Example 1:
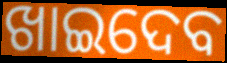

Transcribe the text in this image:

ଖାଇଦେବ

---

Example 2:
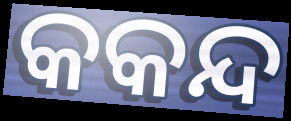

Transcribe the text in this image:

କକନ୍ଦ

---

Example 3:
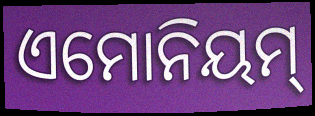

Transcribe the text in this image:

ଏମୋନିୟମ୍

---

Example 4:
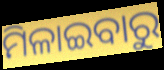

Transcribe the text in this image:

ମିଳାଇବାରୁ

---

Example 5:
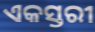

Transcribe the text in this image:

ଏକସ୍ତରୀ